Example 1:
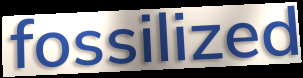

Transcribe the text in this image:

fossilized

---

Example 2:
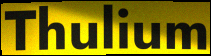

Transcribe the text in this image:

Thulium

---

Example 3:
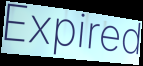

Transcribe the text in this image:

Expired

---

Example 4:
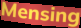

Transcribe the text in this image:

Mensing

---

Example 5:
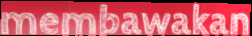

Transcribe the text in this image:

membawakan